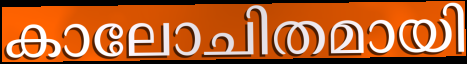
കാലോചിതമായി